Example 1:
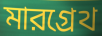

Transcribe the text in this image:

মারগ্রেথ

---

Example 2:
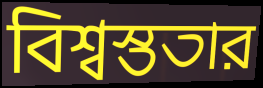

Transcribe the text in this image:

বিশ্বস্ততার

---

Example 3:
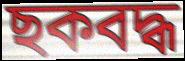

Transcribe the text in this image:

ছকবদ্ধ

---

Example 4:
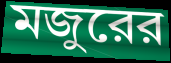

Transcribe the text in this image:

মজুরের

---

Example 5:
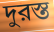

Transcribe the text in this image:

দুরস্ত